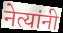
नेत्यांनी